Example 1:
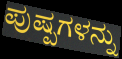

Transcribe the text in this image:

ಪುಷ್ಪಗಳನ್ನು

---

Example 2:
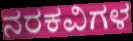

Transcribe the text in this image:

ನರಕವಿಗಳ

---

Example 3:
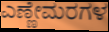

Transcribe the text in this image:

ಎಣ್ಣೇಮರಗಳ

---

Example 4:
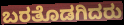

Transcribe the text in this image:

ಬರತೊಡಗಿದರು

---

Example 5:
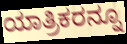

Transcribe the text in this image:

ಯಾತ್ರಿಕರನ್ನೂ